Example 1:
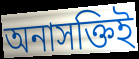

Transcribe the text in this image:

অনাসক্তিই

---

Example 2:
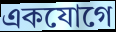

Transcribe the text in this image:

একযোগে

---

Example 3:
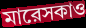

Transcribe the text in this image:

মারেসকাও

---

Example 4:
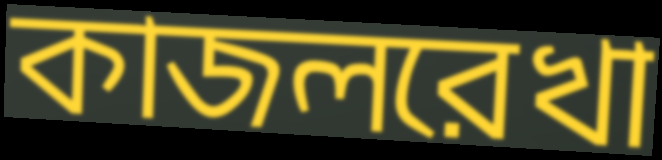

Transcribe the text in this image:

কাজলরেখা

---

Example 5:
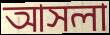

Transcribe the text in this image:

আসলা